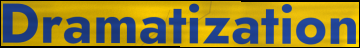
Dramatization